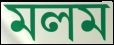
মলম